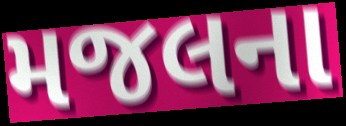
મજલના